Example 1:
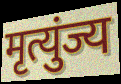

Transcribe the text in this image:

मृत्युंज्य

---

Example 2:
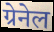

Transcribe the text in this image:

ग्रेनेल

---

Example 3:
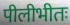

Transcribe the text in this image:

पीलीभीतः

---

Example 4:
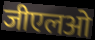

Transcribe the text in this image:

जीएलओ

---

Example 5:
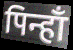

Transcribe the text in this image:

पिन्हाँ